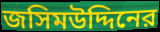
জসিমউদ্দিনের